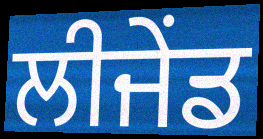
ਲੀਜੇਂਡ